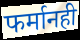
फर्मानही